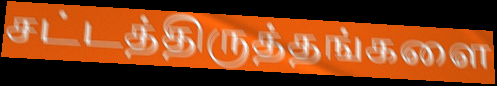
சட்டத்திருத்தங்களை